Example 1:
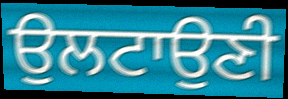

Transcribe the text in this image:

ਉਲਟਾਉਣੀ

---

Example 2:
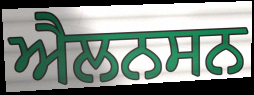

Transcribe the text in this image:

ਐਲਨਸਨ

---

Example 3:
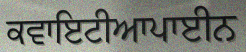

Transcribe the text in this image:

ਕਵਾਇਟੀਆਪਾਈਨ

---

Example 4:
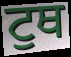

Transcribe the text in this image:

ਟੁਥ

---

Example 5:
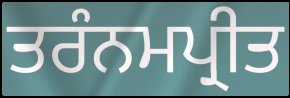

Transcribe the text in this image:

ਤਰੰਨਮਪ੍ਰੀਤ